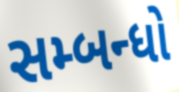
સમ્બન્ધો